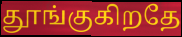
தூங்குகிறதே